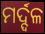
ମର୍ଦ୍ଦଳ